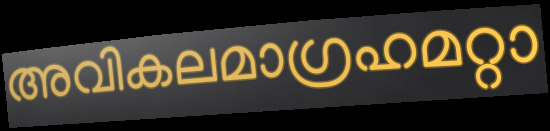
അവികലമാഗ്രഹമറ്റാ